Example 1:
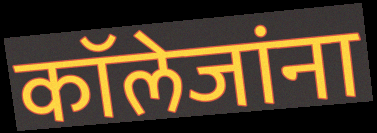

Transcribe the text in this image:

कॉलेजांना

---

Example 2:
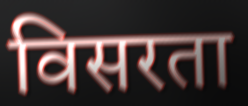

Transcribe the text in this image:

विसरता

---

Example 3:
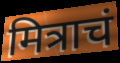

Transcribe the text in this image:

मित्राचं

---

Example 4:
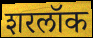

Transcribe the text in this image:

शरलॉक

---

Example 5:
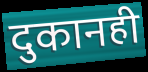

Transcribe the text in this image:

दुकानही